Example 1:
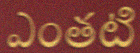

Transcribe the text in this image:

ఎంతటి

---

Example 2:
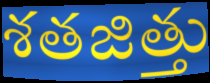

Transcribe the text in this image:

శతజిత్తు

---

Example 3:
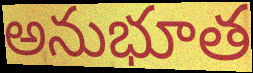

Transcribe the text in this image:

అనుభూత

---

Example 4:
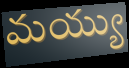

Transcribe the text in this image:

మయ్యు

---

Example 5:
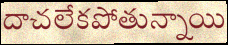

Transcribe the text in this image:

దాచలేకపోతున్నాయి